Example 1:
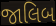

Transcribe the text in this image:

જાલિબ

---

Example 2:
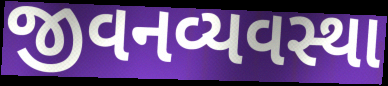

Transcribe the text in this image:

જીવનવ્યવસ્થા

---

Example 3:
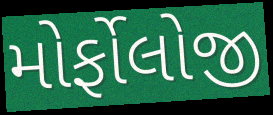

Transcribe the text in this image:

મોર્ફોલોજી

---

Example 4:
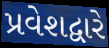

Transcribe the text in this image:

પ્રવેશદ્વારે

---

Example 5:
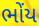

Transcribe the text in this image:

ભોંય